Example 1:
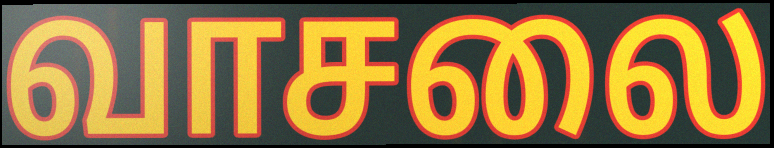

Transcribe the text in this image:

வாசலை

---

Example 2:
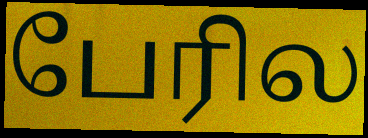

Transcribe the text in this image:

பேரில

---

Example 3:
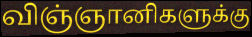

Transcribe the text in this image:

விஞ்ஞானிகளுக்கு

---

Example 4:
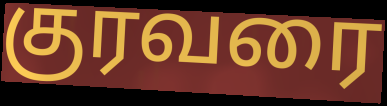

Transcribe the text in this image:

குரவரை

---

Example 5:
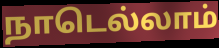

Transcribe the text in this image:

நாடெல்லாம்